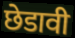
छेडावी